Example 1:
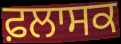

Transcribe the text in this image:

ਫ਼ਲਾਸਕ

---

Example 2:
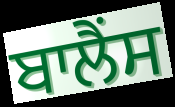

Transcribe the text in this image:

ਬਾਲੈਂਸ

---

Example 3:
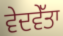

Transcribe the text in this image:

ਵੇਦਵੇੱਤਾ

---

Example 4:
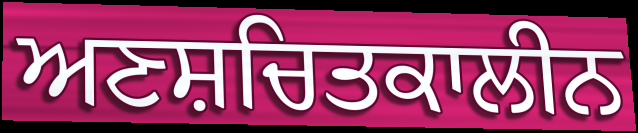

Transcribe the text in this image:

ਅਣਸ਼ਚਿਤਕਾਲੀਨ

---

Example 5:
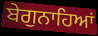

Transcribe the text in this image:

ਬੇਗੁਨਾਹਿਆਂ